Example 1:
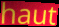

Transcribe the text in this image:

haut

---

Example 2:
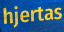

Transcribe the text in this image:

hjertas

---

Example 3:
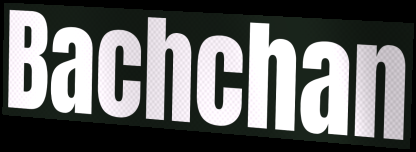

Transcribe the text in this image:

Bachchan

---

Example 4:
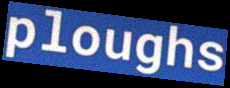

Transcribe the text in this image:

ploughs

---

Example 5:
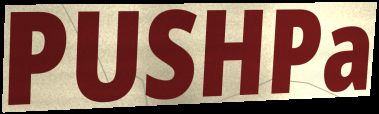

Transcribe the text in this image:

PUSHPa